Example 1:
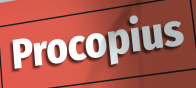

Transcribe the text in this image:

Procopius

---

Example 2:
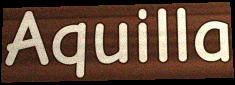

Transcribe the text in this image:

Aquilla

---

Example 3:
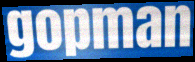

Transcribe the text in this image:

gopman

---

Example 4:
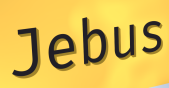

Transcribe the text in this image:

Jebus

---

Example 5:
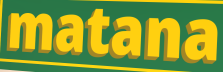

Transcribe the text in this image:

matana